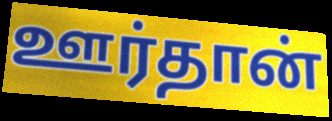
ஊர்தான்